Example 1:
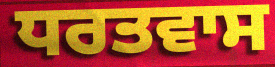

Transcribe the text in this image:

ਧਰਤਵਾਸ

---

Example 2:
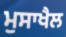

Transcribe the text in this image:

ਮੁਸਾਖੈਲ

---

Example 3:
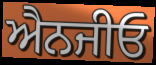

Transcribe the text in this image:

ਐਨਜੀਓ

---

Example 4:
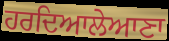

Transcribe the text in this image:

ਹਰਦਿਆਲੇਆਣਾ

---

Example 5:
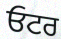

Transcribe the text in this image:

ਓਟਰ